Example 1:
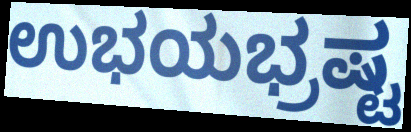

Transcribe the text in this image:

ಉಭಯಭ್ರಷ್ಟ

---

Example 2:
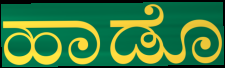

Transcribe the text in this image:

ಹಾಡೊ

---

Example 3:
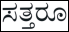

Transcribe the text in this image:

ಸತ್ತರೂ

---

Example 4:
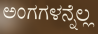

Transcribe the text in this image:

ಅಂಗಗಳನ್ನೆಲ್ಲ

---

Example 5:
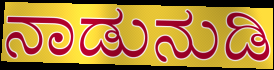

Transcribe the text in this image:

ನಾಡುನುಡಿ